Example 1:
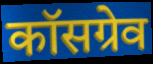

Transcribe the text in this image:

कॉसग्रेव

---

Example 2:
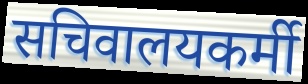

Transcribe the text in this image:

सचिवालयकर्मी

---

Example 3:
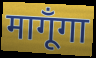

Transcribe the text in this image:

मागूँगा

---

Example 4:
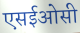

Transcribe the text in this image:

एसईओसी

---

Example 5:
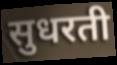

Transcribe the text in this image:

सुधरती